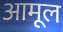
आमूल